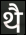
थै